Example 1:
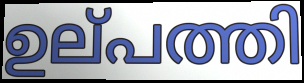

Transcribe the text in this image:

ഉല്‌പത്തി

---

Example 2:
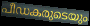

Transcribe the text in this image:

പീഡകരുടെയും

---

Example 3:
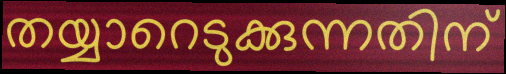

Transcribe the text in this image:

തയ്യാറെടുക്കുന്നതിന്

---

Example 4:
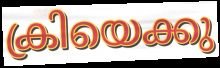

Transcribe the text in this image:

ക്രിയെക്കു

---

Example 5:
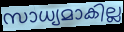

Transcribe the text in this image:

സാധ്യമാകില്ല